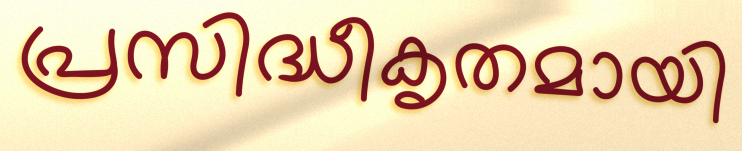
പ്രസിദ്ധീകൃതമായി